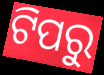
ଟିପରୁ